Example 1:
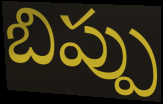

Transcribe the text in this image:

బిప్పు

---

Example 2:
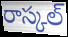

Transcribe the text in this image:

రాస్కల్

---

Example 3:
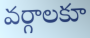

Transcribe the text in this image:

వర్గాలకూ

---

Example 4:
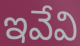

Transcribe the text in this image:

ఇవేవి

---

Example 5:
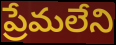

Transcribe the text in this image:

ప్రేమలేని